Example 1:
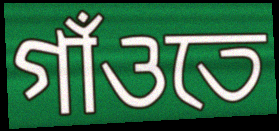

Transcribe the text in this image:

গাঁওতে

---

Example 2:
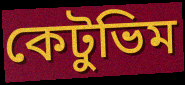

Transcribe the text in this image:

কেটুভিম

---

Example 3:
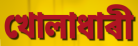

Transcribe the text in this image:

খোলাধাৰী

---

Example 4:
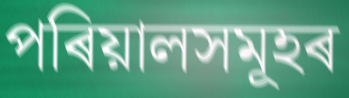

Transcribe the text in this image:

পৰিয়ালসমূহৰ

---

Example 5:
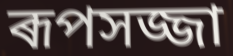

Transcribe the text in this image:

ৰূপসজ্জা